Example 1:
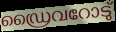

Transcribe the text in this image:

ഡ്രൈവറോടു്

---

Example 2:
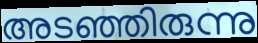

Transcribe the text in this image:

അടഞ്ഞിരുന്നു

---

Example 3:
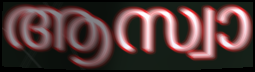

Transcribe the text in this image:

ആസ്വാ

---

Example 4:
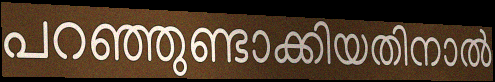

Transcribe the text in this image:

പറഞ്ഞുണ്ടാക്കിയതിനാൽ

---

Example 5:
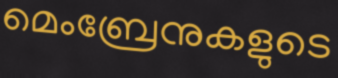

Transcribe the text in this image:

മെംബ്രേനുകളുടെ